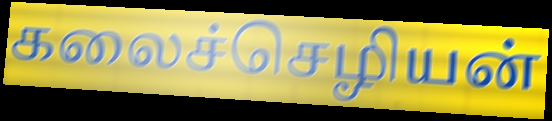
கலைச்செழியன்